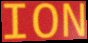
ION